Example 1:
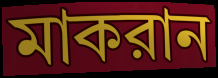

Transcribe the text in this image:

মাকরান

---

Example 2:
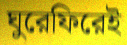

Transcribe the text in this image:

ঘুরেফিরেই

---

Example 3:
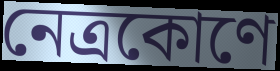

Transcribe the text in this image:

নেত্রকোণে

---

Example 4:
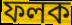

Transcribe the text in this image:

ফলক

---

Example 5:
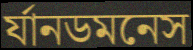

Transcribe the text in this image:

র্যানডমনেস